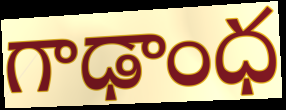
గాఢాంధ